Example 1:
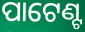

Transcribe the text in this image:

ପାଟେଣ୍ଟ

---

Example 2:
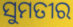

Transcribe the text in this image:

ସୁମତୀର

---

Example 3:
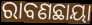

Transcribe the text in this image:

ରାବଣଛାୟା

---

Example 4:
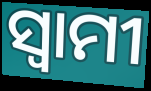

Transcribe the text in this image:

ସ୍ବାମୀ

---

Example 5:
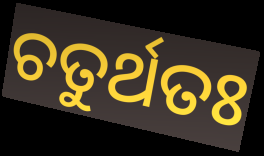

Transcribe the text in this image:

ଚତୁର୍ଥତଃ